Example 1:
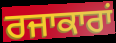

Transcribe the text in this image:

ਰਜਾਕਾਰਾਂ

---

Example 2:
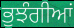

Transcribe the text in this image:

ਭੁਝੰਗੀਆਂ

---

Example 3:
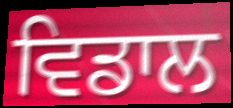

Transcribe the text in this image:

ਵਿਡਾਲ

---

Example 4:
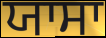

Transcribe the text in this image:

ਯਾਸਾ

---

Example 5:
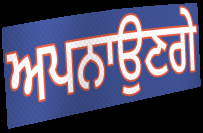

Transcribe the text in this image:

ਅਪਨਾਉਣਗੇ